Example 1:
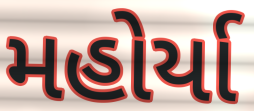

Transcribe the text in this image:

મહોર્યા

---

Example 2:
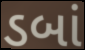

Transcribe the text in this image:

ડબાં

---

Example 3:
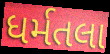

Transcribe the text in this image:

ધર્મતલા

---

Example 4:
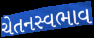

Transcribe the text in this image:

ચેતનસ્વભાવ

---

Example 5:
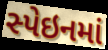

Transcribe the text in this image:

સ્પેઇનમાં